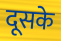
दूसके